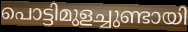
പൊട്ടിമുളച്ചുണ്ടായി